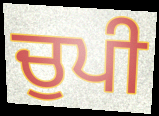
ਚੁਪੀ